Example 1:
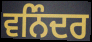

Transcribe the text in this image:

ਵਨਿੰਦਰ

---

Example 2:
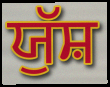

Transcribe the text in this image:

ਯੁੱਸ਼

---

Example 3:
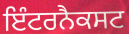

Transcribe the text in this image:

ਇੰਟਰਨੈਕਸਟ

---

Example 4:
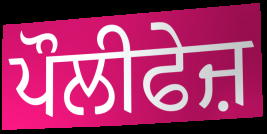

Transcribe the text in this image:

ਪੌਲੀਫੇਜ਼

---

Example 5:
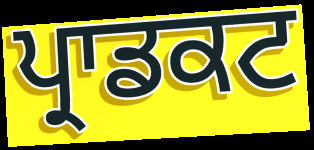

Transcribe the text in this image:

ਪ੍ਰਾਡਕਟ